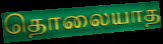
தொலையாத